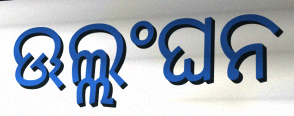
ଊଲ୍ଲଂଘନ